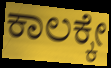
ಕಾಲಕ್ಕೇ